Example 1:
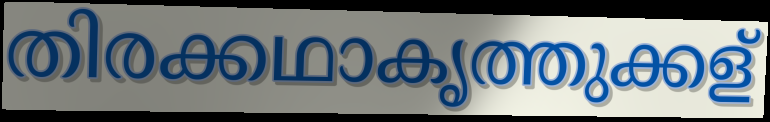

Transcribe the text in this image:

തിരക്കഥാകൃത്തുക്കള്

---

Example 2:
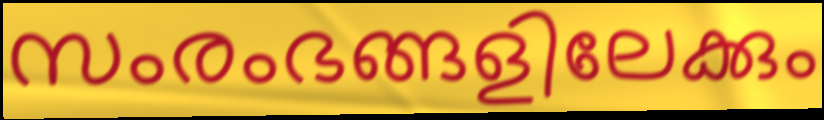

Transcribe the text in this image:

സംരംഭങ്ങളിലേക്കും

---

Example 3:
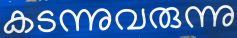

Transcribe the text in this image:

കടന്നുവരുന്നു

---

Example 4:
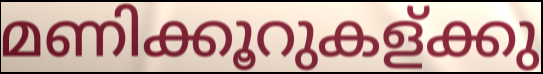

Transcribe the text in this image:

മണിക്കൂറുകള്ക്കു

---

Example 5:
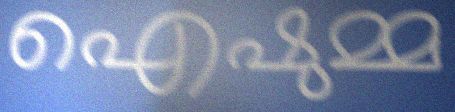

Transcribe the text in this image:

ഐഷുമ്മ